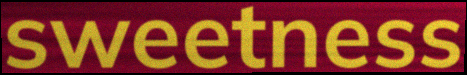
sweetness